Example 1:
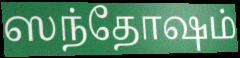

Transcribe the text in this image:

ஸந்தோஷம்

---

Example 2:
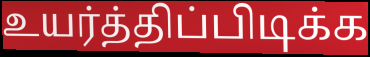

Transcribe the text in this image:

உயர்த்திப்பிடிக்க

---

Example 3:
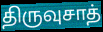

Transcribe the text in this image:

திருவுசாத்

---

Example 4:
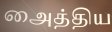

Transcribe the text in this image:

அைத்திய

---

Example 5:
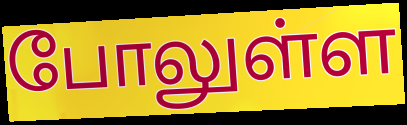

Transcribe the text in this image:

போலுள்ள